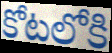
కోటలోకి